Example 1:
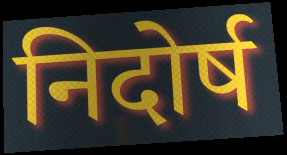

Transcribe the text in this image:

निदोर्ष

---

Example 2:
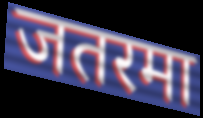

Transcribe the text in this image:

जतरमा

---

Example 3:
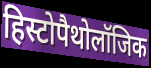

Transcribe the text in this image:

हिस्टोपैथोलॉजिक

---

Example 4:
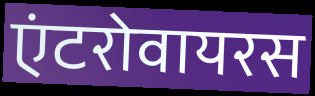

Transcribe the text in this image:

एंटरोवायरस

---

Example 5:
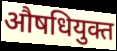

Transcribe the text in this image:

औषधियुक्त